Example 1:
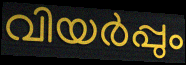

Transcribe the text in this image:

വിയർപ്പും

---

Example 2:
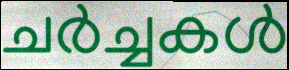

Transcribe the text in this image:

ചർച്ചകൾ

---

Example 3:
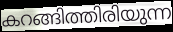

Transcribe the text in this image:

കറങ്ങിത്തിരിയുന്ന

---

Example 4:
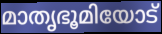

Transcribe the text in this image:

മാതൃഭൂമിയോട്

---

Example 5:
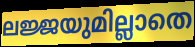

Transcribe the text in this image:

ലജ്ജയുമില്ലാതെ